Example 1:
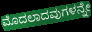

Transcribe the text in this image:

ಮೊದಲಾದವುಗಳನ್ನೇ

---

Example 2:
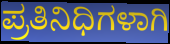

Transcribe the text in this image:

ಪ್ರತಿನಿಧಿಗಳಾಗಿ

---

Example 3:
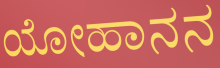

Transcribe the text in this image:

ಯೋಹಾನನ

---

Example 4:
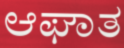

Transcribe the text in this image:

ಆಘಾತ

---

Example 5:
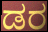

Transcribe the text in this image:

ಡರ